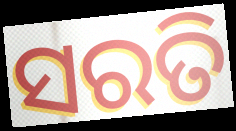
ସରତି